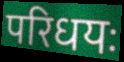
परिधयः